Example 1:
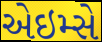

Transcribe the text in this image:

એઇમ્સે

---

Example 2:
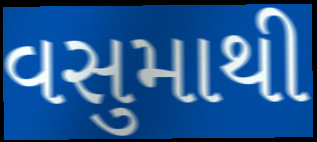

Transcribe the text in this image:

વસુમાથી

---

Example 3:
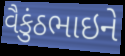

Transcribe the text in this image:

વૈકુંઠભાઇને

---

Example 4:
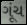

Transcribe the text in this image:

ગૂંચ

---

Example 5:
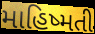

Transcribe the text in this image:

માહિષ્મતી